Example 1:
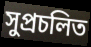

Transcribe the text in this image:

সুপ্রচলিত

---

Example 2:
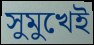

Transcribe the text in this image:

সুমুখেই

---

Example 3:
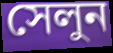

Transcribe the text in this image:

সেলুন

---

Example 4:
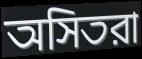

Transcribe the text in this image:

অসিতরা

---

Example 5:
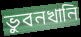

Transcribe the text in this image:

ভুবনখানি